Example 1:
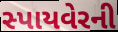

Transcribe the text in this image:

સ્પાયવેરની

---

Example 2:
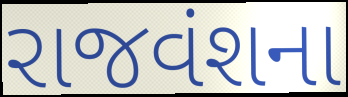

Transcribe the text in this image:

રાજવંશના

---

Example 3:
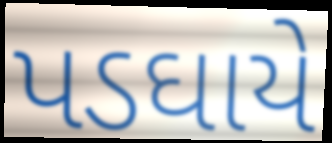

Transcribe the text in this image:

પડઘાયે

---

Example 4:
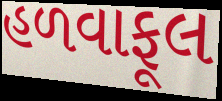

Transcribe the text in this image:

હળવાફૂલ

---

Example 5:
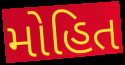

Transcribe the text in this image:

મોહિત